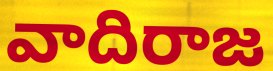
వాదిరాజ